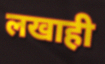
लखाही